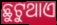
ଛୁଟୁଥାଏ